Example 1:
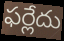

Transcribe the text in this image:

ఫర్లేదు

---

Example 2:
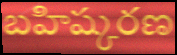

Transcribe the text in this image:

బహిష్కరణ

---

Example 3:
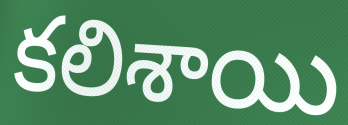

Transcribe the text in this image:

కలిశాయి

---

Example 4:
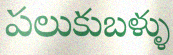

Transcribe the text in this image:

పలుకుబళ్ళు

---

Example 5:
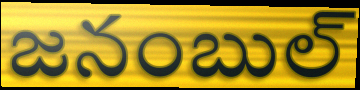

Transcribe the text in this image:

జనంబుల్